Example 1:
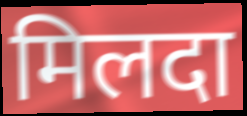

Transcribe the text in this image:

मिलदा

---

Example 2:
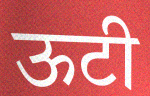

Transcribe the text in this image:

ऊटी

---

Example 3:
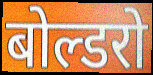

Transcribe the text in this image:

बोल्डरो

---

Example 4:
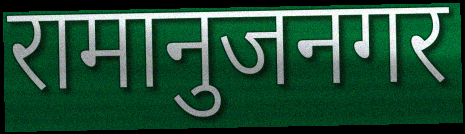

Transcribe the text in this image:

रामानुजनगर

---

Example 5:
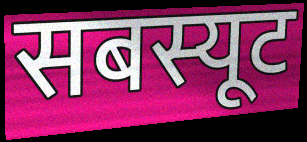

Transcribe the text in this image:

सबस्यूट